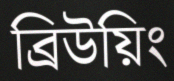
ব্রিউয়িং